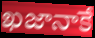
ఖజానాకే